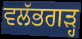
ਵਲੱਭਗੜ੍ਹ